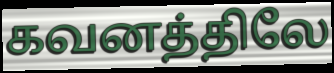
கவனத்திலே